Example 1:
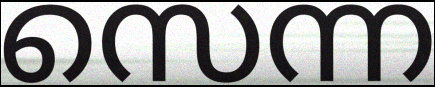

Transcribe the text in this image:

സെന്ന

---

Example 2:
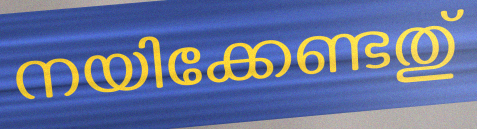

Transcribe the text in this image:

നയിക്കേണ്ടതു്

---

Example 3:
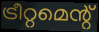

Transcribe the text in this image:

ട്രീറ്റമെന്റ്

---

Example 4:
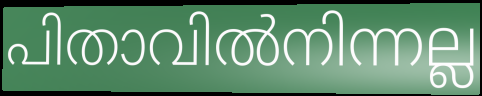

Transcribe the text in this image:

പിതാവിൽനിന്നല്ല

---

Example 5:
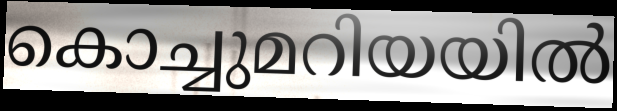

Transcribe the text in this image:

കൊച്ചുമറിയയിൽ